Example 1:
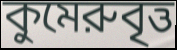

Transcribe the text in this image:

কুমেরুবৃত্ত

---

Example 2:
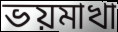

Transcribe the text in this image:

ভয়মাখা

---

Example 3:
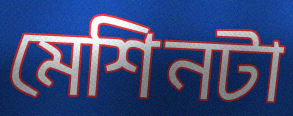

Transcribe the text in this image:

মেশিনটা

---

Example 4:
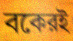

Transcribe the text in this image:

বকেরই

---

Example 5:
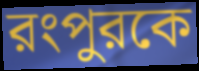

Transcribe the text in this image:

রংপুরকে